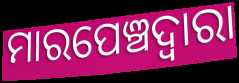
ମାରପେଞ୍ଚଦ୍ବାରା